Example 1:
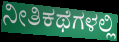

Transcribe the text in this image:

ನೀತಿಕಥೆಗಳಲ್ಲಿ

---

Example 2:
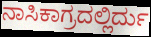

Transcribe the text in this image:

ನಾಸಿಕಾಗ್ರದಲ್ಲಿರ್ದು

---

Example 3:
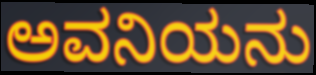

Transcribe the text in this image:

ಅವನಿಯನು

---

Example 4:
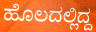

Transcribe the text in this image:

ಹೊಲದಲ್ಲಿದ್ದ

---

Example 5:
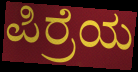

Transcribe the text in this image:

ಪಿರ್ರೆಯ